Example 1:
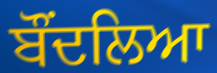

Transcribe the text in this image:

ਬੌਂਦਲਿਆ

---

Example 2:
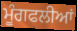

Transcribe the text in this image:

ਮੂੰਗਫਲੀਆਂ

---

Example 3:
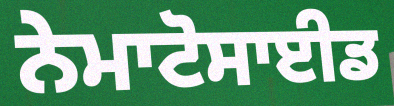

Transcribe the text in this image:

ਨੇਮਾਟੋਸਾਈਡ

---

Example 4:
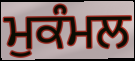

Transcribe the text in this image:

ਮੁਕੰਮਲ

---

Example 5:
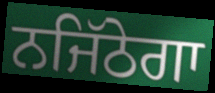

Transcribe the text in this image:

ਨਜਿੱਠੇਗਾ